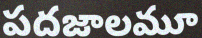
పదజాలమూ